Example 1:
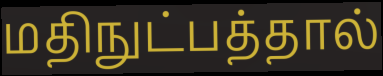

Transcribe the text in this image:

மதிநுட்பத்தால்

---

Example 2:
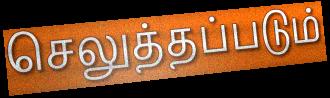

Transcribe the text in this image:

செலுத்தப்படும்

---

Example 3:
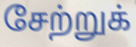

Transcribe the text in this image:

சேற்றுக்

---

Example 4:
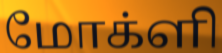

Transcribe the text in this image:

மோக்ளி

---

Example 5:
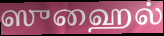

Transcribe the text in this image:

ஸுஹைல்